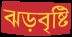
ঝড়বৃষ্টি